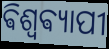
ଵିଶ୍ଵଵ୍ୟାପୀ